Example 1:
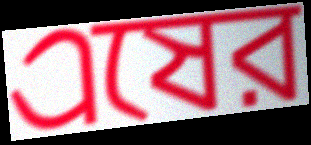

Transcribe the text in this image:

এষের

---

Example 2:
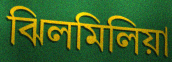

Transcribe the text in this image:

ঝিলমিলিয়া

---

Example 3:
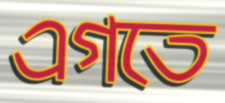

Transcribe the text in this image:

এগতে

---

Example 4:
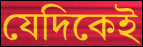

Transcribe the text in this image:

যেদিকেই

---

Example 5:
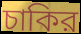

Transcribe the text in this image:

চাকির